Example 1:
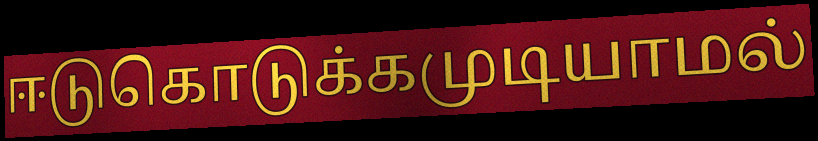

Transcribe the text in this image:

ஈடுகொடுக்கமுடியாமல்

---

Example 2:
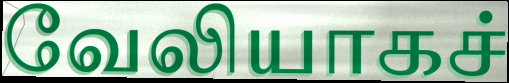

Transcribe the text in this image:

வேலியாகச்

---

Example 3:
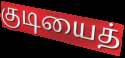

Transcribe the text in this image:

குடியைத்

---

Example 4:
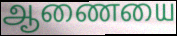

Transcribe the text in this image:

ஆணையை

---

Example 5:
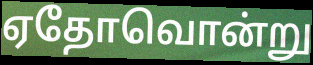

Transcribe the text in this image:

ஏதோவொன்று